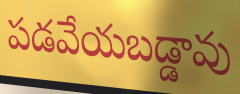
పడవేయబడ్డావు